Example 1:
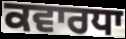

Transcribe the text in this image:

ਕਵਾਰਧਾ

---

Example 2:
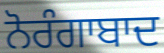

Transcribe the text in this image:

ਨੋਰੰਗਾਬਾਦ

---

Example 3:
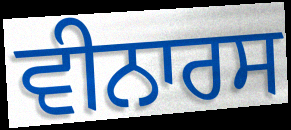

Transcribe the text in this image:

ਵੀਨਾਰਸ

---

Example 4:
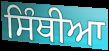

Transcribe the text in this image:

ਸਿੰਥੀਆ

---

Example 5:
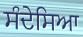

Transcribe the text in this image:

ਸੰਦੇਸਿਆ